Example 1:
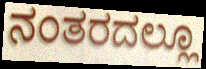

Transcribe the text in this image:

ನಂತರದಲ್ಲೂ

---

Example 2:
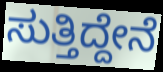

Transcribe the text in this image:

ಸುತ್ತಿದ್ದೇನೆ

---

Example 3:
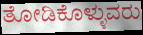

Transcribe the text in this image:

ತೋಡಿಕೊಳ್ಳುವರು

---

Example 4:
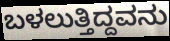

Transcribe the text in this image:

ಬಳಲುತ್ತಿದ್ದವನು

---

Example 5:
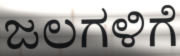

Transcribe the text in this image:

ಜಲಗಳಿಗೆ